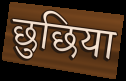
छुछिया